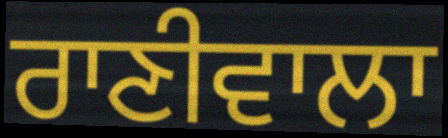
ਰਾਣੀਵਾਲਾ